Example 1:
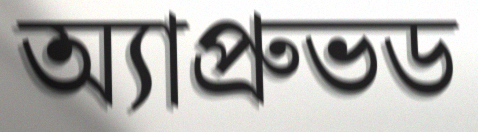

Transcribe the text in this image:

অ্যাপ্রুভড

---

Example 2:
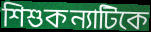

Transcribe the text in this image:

শিশুকন্যাটিকে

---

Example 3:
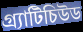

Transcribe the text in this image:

গ্র্যাটিচিউড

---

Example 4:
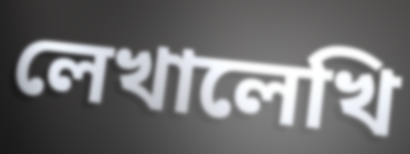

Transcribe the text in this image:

লেখালেখি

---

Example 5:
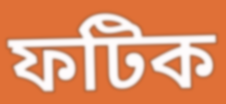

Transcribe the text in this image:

ফটিক